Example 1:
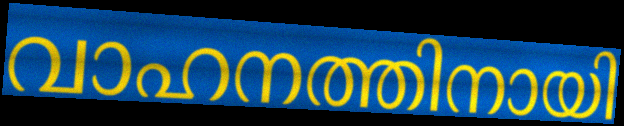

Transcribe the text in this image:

വാഹനത്തിനായി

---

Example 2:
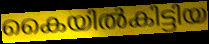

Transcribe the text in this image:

കൈയിൽകിട്ടിയ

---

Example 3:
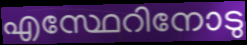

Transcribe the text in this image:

എസ്ഥേറിനോടു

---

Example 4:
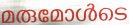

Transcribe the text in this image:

മരുമോൾടെ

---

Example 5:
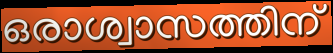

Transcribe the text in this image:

ഒരാശ്വാസത്തിന്